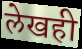
लेखही